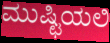
ಮುಷ್ಟಿಯಲಿ